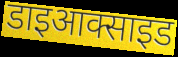
डाइआक्साइड